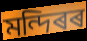
মন্দিৰৰ